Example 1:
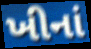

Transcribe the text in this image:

ખીનાં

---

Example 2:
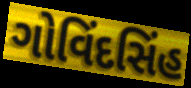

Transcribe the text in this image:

ગોવિંદસિંહ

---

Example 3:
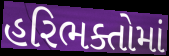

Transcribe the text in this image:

હરિભક્તોમાં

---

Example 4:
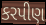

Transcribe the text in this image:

કરપીણ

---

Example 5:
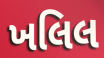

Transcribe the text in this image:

ખલિલ